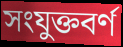
সংযুক্তবর্ণ